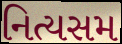
નિત્યસમ